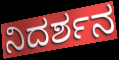
ನಿದರ್ಶನ